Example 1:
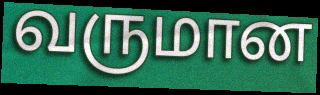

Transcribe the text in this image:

வருமான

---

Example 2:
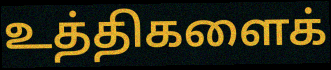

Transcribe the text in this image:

உத்திகளைக்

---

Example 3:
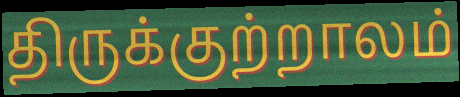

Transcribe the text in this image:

திருக்குற்றாலம்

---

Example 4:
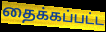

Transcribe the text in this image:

தைக்கப்பட்ட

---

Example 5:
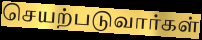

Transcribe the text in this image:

செயற்படுவார்கள்